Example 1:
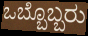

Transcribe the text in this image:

ಒಬ್ಬೊಬ್ಬರು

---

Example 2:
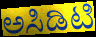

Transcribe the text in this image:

ಅಸಿಡಿಟಿ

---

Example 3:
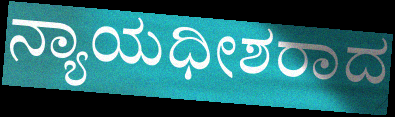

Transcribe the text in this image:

ನ್ಯಾಯಧೀಶರಾದ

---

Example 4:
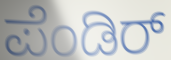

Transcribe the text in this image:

ಪೆಂಡಿರ್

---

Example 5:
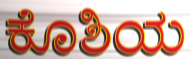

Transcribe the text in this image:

ಕೊಶಿಯ